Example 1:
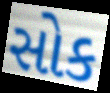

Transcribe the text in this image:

સોક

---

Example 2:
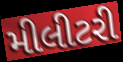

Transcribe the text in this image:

મીલીટરી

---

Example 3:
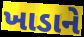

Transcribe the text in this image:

ખાડાને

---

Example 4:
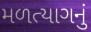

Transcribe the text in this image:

મળત્યાગનું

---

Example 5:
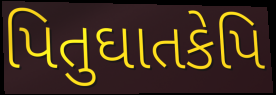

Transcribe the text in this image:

પિતુઘાતકેપિ